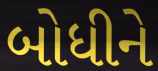
બોધીને